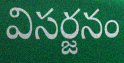
విసర్జనం